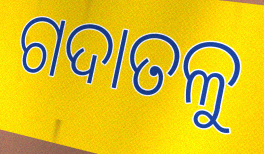
ଗଦାତଳୁ